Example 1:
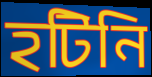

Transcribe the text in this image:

হটিনি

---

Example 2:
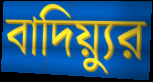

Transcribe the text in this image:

বাদিয়্যুর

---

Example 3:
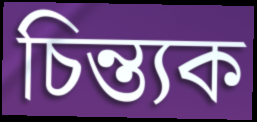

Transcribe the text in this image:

চিন্ত্যক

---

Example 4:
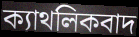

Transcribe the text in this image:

ক্যাথলিকবাদ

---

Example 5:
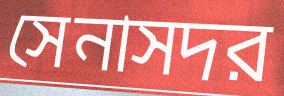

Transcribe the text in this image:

সেনাসদর